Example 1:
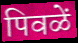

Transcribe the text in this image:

पिवळें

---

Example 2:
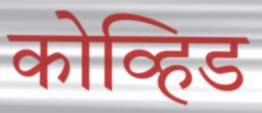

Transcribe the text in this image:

कोव्हिड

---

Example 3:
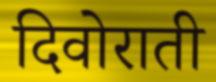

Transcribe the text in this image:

दिवोराती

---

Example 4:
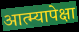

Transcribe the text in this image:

आत्म्यापेक्षा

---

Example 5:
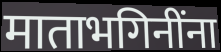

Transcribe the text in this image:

माताभगिनींना